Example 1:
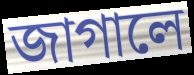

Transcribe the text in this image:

জাগালে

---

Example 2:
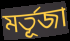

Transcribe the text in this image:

মর্তূজা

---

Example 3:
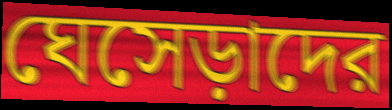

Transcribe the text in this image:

ঘেসেড়াদের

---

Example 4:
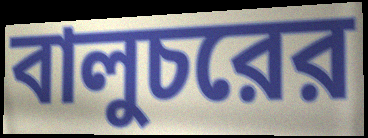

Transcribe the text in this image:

বালুচরের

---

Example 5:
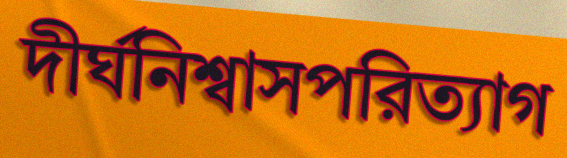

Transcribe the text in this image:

দীর্ঘনিশ্বাসপরিত্যাগ